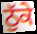
ਠੁੱਕੇ